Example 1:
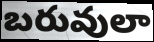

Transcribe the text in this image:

బరువులా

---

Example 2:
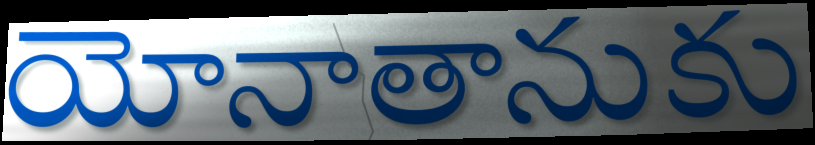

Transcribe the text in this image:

యోనాతానుకు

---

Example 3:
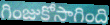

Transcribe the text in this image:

గింజుకోసాగింది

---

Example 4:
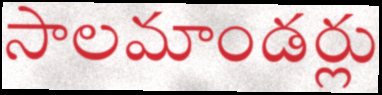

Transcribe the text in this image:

సాలమాండర్లు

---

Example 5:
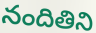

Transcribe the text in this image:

నందితిని